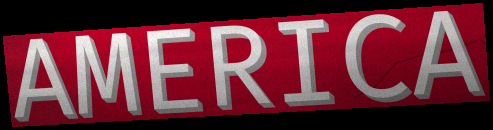
AMERICA